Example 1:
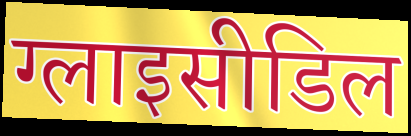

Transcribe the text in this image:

ग्लाइसीडिल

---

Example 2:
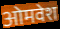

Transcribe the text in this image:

ओमवेश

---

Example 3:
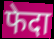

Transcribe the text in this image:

फेदा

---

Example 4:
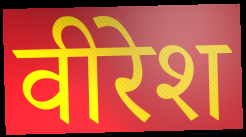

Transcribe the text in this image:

वीरेश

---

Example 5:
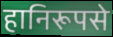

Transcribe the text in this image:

हानिरूपसे